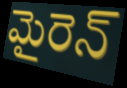
మైరెన్